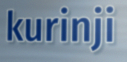
kurinji